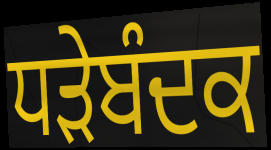
ਧੜੇਬੰਦਕ